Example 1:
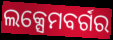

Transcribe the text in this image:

ଲକ୍ସେମବର୍ଗର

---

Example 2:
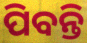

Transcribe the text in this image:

ପିବନ୍ତି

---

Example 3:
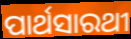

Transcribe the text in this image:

ପାର୍ଥସାରଥୀ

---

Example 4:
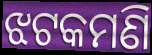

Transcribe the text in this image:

ଝଟକମଣି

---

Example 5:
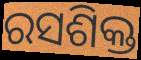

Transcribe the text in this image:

ରସଶିକ୍ତ